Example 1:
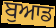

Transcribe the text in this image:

ਬੁਆਡ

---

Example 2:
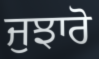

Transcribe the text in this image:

ਜੁਝਾਰੋ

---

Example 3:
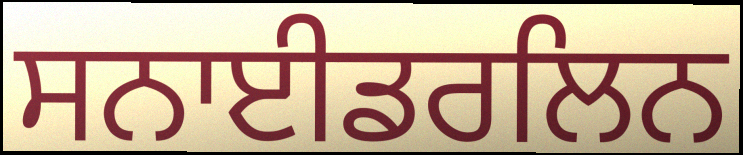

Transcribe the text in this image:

ਸਨਾਈਡਰਲਿਨ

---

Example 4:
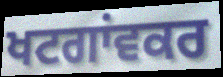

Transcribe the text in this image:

ਖਟਗਾਂਵਕਰ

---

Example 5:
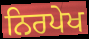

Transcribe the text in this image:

ਨਿਰਪੇਖ